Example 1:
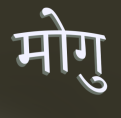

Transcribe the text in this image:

मोगु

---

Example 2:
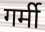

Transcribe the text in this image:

गर्मी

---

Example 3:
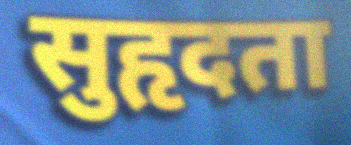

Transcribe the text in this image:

सुहृदता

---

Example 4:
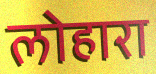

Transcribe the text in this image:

लोहारा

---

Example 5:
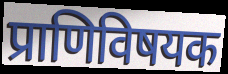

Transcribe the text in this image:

प्राणिविषयक